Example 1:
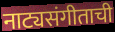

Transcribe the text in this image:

नाट्यसंगीताची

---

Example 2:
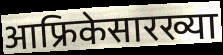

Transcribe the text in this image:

आफ्रिकेसारख्या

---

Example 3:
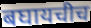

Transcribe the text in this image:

बघायचीच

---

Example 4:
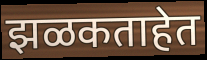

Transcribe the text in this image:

झळकताहेत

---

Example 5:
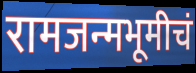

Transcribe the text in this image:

रामजन्मभूमीचं